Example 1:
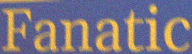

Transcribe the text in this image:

Fanatic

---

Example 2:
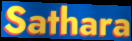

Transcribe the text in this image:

Sathara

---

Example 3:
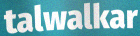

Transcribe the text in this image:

talwalkar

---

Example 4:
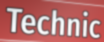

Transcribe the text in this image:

Technic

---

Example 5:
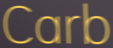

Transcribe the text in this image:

Carb